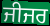
ਜੀਜਰ